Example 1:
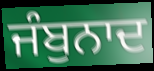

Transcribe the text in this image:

ਜੰਬੁਨਾਦ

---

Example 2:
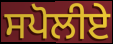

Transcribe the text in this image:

ਸਪੋਲੀਏ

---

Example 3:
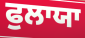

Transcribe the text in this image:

ਫੁਲਾਯਾ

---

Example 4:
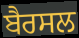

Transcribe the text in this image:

ਬੈਰਸਲ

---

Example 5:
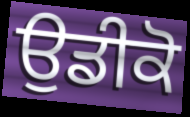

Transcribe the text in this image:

ਉਡੀਕੋ